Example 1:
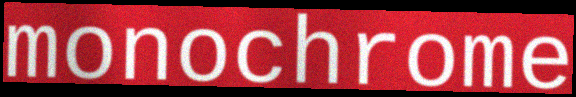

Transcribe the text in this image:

monochrome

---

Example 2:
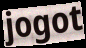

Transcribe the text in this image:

jogot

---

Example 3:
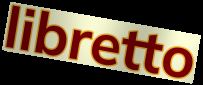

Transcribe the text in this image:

libretto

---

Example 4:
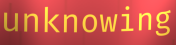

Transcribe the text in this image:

unknowing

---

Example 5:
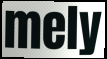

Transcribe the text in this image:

mely